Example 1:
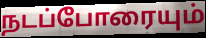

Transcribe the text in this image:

நடப்போரையும்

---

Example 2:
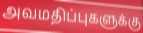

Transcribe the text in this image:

அவமதிப்புகளுக்கு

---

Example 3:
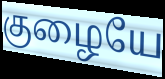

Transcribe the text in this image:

குழையே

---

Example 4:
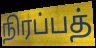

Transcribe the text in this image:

நிரப்பத்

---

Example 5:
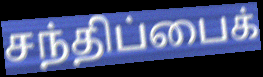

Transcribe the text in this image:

சந்திப்பைக்